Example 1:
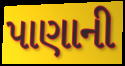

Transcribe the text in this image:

પાણાની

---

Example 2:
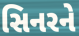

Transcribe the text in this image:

સિનરને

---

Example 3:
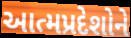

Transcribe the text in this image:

આત્મપ્રદેશોને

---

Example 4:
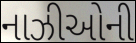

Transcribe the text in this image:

નાઝીઓની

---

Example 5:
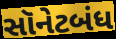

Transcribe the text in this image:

સૉનેટબંધ